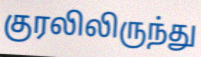
குரலிலிருந்து